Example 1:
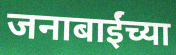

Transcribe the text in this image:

जनाबाईंच्या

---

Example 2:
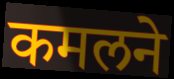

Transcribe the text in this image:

कमलने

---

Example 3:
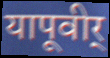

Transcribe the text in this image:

यापूवीर्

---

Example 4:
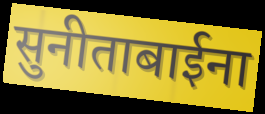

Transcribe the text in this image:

सुनीताबाईना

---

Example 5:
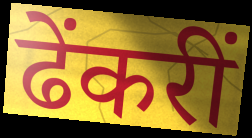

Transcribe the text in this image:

ढेंकरीं